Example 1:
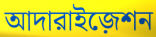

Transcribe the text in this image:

আদারাইজ়েশন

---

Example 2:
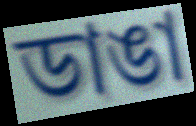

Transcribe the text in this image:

ডাঙা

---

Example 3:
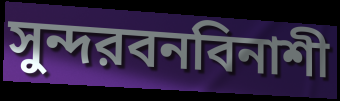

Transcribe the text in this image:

সুন্দরবনবিনাশী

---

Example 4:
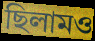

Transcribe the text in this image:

ছিলামও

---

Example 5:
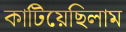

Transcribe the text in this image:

কাটিয়েছিলাম